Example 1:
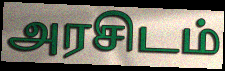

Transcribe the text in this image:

அரசிடம்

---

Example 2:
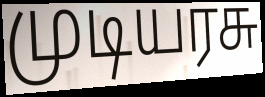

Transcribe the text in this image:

முடியரசு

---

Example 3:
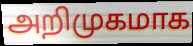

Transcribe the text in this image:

அறிமுகமாக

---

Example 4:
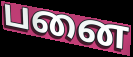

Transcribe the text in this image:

பனை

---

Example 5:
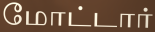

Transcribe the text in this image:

மோட்டார்